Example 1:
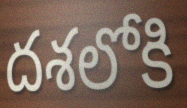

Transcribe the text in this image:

దశలోకి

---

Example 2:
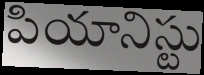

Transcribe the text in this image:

పియానిస్టు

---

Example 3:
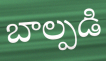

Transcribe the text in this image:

బాల్పడి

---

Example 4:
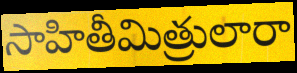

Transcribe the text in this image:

సాహితీమిత్రులారా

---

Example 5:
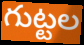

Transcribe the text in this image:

గుట్టల